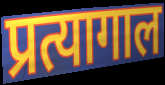
प्रत्यागाल